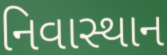
નિવાસ્થાન